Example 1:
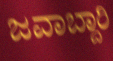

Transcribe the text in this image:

ಜವಾಬ್ದಾರಿ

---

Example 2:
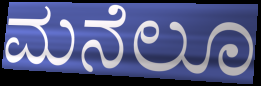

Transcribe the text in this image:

ಮನೆಲೂ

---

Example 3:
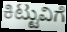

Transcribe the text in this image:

ಕಿಟ್ಟುವಿಗೆ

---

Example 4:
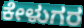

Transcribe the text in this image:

ಕೇಳುಗರ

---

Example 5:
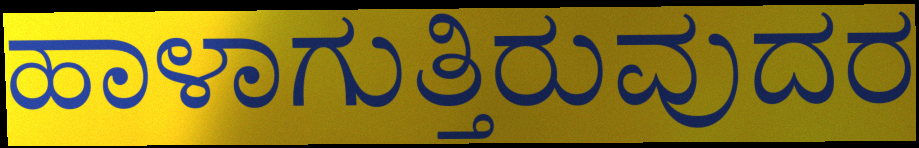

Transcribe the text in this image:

ಹಾಳಾಗುತ್ತಿರುವುದರ